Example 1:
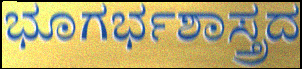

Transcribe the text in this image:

ಭೂಗರ್ಭಶಾಸ್ತ್ರದ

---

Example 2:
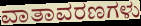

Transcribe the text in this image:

ವಾತಾವರಣಗಳು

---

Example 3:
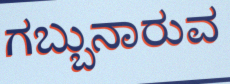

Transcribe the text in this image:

ಗಬ್ಬುನಾರುವ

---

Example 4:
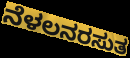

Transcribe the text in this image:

ನೆಳಲನರಸುತ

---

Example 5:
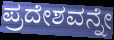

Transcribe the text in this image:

ಪ್ರದೇಶವನ್ನೇ